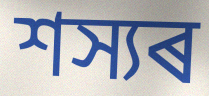
শস্যৰ